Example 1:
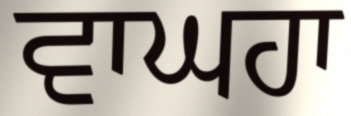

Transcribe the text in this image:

ਵਾਘਹਾ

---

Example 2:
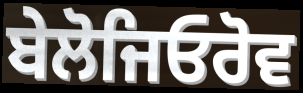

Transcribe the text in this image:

ਬੇਲੋਜਿਓਰੋਵ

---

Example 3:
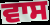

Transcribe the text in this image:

ਵਾਸ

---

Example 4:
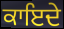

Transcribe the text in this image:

ਕਾਇਦੇ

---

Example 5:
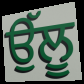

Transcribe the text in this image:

ਉੱਲੂ